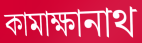
কামাক্ষানাথ